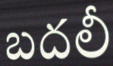
బదలీ